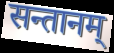
सन्तानम्